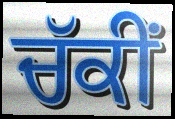
ਚੱਕੀਂ